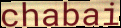
chabai